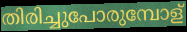
തിരിച്ചുപോരുമ്പോള്